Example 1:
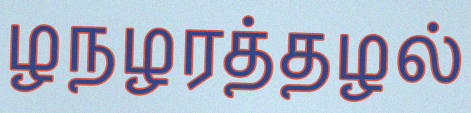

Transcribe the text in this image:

ழநழரத்தழல்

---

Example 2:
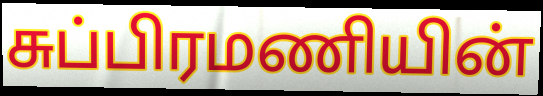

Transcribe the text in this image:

சுப்பிரமணியின்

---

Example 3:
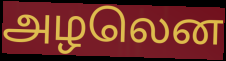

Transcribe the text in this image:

அழலென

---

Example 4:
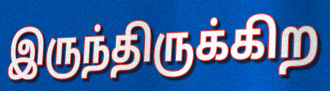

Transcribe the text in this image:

இருந்திருக்கிற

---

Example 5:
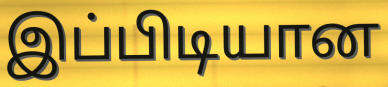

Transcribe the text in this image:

இப்பிடியான